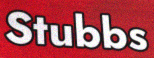
Stubbs